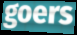
goers